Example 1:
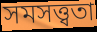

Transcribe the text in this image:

সমসত্ত্বতা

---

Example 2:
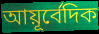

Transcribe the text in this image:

আয়ূর্বেদিক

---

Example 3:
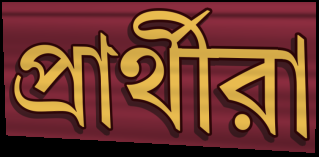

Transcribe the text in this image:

প্রার্থীরা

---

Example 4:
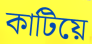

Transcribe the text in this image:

কাটিয়ে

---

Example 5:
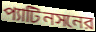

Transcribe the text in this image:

প্যাটিনসনের